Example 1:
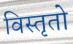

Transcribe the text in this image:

विस्तृतो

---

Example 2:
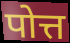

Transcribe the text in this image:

पोत्त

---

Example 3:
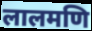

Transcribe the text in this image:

लालमणि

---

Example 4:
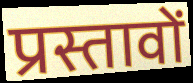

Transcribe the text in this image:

प्रस्‍तावों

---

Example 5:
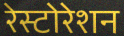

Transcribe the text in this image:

रेस्टोरेशन